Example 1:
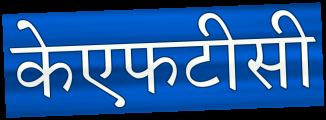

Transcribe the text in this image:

केएफटीसी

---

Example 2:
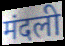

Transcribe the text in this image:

मंदली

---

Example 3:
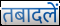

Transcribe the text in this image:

तबादलें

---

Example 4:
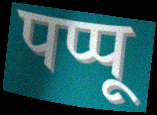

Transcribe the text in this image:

पप्‍पू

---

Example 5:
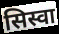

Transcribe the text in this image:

सिस्वा